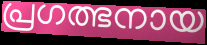
പ്രഗത്ഭനായ